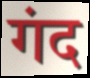
गंद